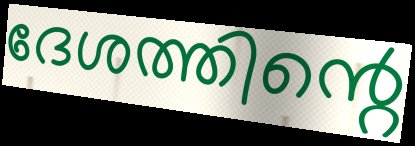
ദേശത്തിന്റെ